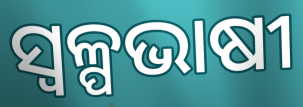
ସ୍ୱଳ୍ପଭାଷୀ